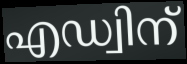
എഡ്വിന്